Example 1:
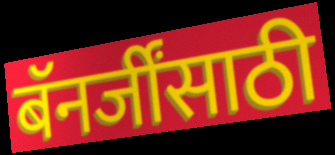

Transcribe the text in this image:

बॅनर्जींसाठी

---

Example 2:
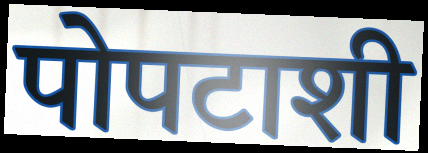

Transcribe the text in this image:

पोपटाशी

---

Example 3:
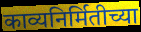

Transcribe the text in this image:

काव्यनिर्मितीच्या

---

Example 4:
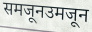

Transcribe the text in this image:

समजूनउमजून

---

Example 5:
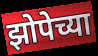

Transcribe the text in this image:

झोपेच्या